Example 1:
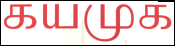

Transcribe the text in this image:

கயமுக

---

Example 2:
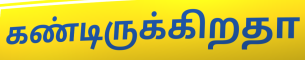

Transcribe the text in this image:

கண்டிருக்கிறதா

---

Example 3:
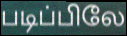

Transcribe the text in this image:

படிப்பிலே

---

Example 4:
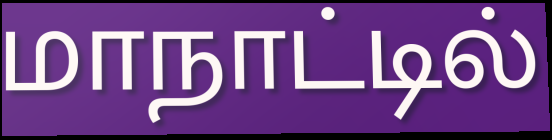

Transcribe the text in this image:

மாநாட்டில்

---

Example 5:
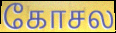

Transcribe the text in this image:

கோசல